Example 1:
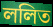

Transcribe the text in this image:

ললিত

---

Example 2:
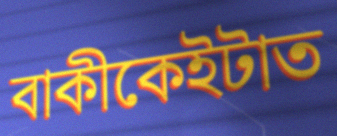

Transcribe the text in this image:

বাকীকেইটাত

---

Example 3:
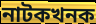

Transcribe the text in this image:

নাটকখনক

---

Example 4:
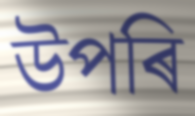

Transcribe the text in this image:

উপৰি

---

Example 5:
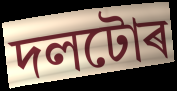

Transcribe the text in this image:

দলটোৰ